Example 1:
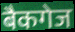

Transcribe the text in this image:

बैकगेज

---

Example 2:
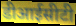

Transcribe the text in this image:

डीआईसीटी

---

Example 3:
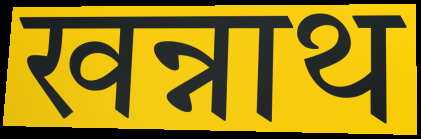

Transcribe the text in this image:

खन्नाथ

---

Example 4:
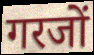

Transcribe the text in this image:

गरजों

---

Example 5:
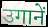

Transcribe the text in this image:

उगानें